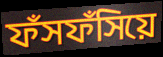
ফঁসফঁসিয়ে